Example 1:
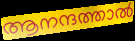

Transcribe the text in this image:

ആനന്ദത്താൽ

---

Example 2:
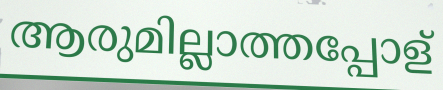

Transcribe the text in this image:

ആരുമില്ലാത്തപ്പോള്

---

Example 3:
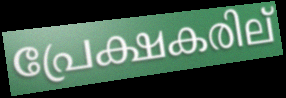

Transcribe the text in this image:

പ്രേക്ഷകരില്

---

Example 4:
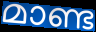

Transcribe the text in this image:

മാണ്ട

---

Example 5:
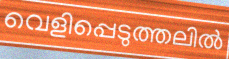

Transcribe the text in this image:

വെളിപ്പെടുത്തലിൽ